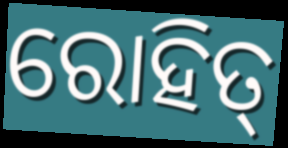
ରୋହିତ୍